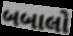
બબાલો